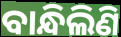
ବାନ୍ଧିଲିଣି